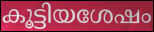
കൂട്ടിയശേഷം